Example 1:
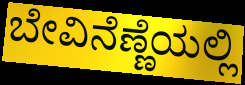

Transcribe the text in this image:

ಬೇವಿನೆಣ್ಣೆಯಲ್ಲಿ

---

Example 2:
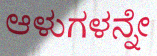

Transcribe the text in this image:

ಆಳುಗಳನ್ನೇ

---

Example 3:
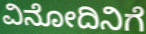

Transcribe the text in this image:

ವಿನೋದಿನಿಗೆ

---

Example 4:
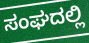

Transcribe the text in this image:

ಸಂಘದಲ್ಲಿ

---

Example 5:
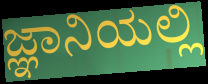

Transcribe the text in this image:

ಜ್ಞಾನಿಯಲ್ಲಿ